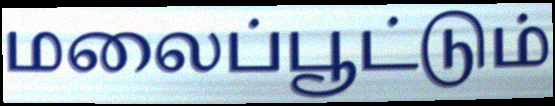
மலைப்பூட்டும்